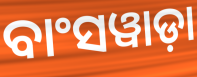
ବାଂସୱାଡ଼ା